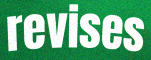
revises